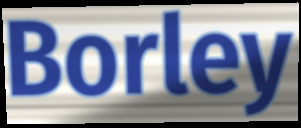
Borley